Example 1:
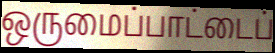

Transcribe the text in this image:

ஒருமைப்பாட்டைப்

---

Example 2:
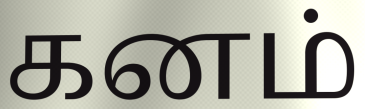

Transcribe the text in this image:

கனம்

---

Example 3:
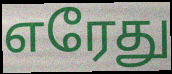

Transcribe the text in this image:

எரேது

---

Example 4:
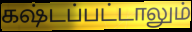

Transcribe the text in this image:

கஷ்டப்பட்டாலும்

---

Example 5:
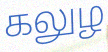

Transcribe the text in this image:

கலுழ